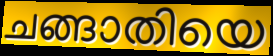
ചങ്ങാതിയെ